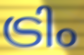
ട്രിം